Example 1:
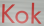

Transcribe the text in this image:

Kok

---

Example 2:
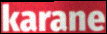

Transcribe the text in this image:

karane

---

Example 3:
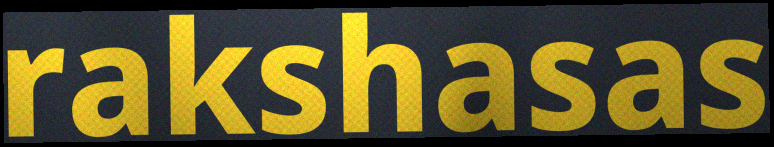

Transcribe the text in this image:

rakshasas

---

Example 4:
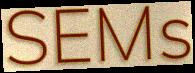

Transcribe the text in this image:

SEMs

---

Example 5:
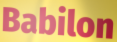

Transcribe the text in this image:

Babilon